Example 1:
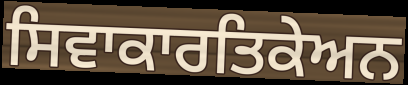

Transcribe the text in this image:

ਸਿਵਾਕਾਰਤਿਕੇਅਨ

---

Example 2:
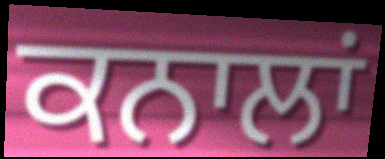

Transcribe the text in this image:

ਕਨਾਲਾਂ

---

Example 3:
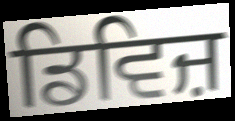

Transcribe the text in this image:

ਡਿਵਿਜ਼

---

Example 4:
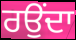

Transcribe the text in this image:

ਰਉਂਦਾ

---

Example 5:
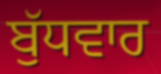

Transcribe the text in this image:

ਬੁੱਧਵਾਰ